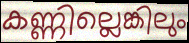
കണ്ണില്ലെങ്കിലും